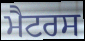
ਮੈਟਰਸ